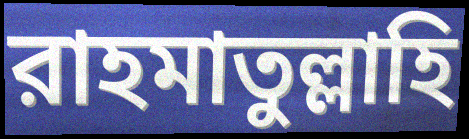
রাহমাতুল্লাহি